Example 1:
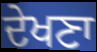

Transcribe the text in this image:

ਦੇਖਣਾ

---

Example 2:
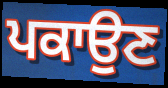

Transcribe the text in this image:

ਪਕਾਉਣ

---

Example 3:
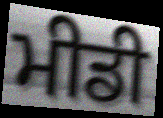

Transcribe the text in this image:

ਮੀਡੀ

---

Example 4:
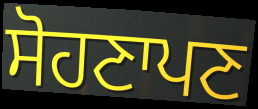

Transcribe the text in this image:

ਸੋਹਣਾਪਣ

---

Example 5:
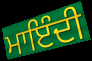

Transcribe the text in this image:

ਮਾਇੰਦੀ